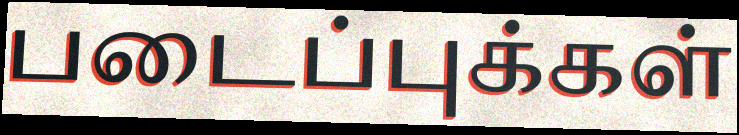
படைப்புக்கள்